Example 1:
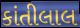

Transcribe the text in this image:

કાંતીલાલ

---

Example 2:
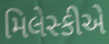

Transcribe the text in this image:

મિલેસ્કીએ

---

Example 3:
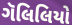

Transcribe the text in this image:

ગૅલિલિયો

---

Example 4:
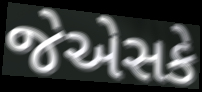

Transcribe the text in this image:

જેએસકે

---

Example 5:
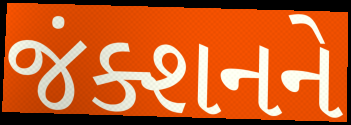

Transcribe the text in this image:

જંક્શનને